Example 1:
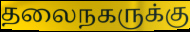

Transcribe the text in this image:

தலைநகருக்கு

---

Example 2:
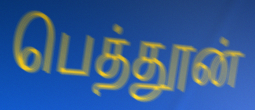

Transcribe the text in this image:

பெத்தூன்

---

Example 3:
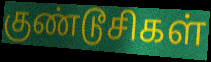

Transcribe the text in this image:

குண்டூசிகள்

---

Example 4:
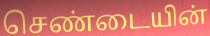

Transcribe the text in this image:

செண்டையின்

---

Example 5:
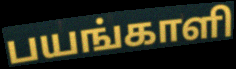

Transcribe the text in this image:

பயங்காளி